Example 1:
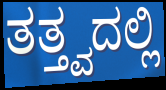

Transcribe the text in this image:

ತತ್ತ್ವದಲ್ಲಿ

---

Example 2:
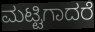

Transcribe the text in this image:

ಮಟ್ಟಿಗಾದರೆ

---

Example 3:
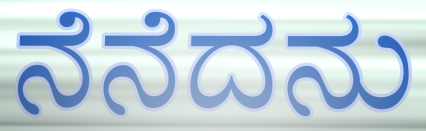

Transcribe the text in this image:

ನೆನೆದನು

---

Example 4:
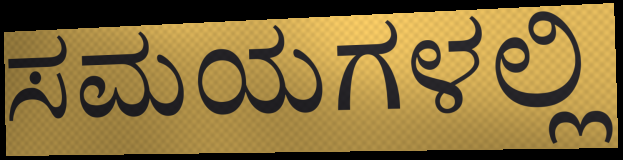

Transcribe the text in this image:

ಸಮಯಗಳಲ್ಲಿ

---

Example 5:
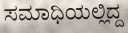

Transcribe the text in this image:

ಸಮಾಧಿಯಲ್ಲಿದ್ದ